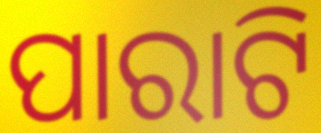
ପାରାଟି